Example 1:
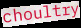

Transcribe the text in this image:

choultry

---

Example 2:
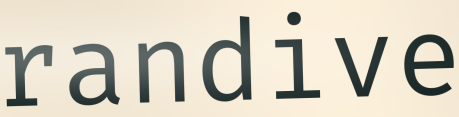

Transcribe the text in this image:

randive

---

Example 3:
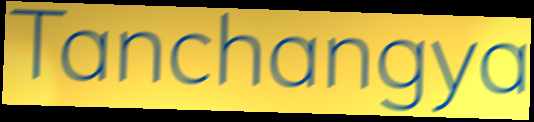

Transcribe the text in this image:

Tanchangya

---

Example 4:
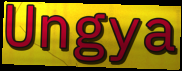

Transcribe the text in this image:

Ungya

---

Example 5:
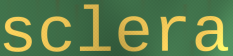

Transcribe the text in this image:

sclera